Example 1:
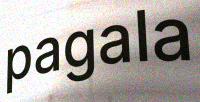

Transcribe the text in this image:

pagala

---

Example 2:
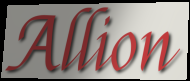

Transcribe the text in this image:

Allion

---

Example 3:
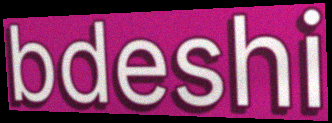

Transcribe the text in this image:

bdeshi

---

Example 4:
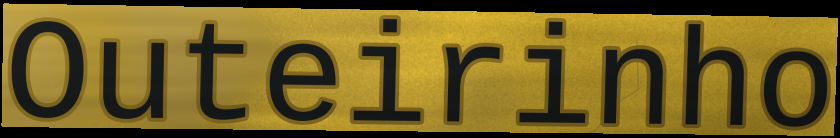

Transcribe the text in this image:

Outeirinho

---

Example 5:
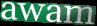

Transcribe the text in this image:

awam